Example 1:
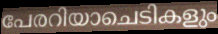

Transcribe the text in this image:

പേരറിയാചെടികളും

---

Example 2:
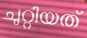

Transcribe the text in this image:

ചുറ്റിയത്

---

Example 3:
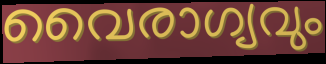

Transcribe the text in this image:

വൈരാഗ്യവും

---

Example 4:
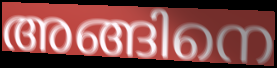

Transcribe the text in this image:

അങ്ങിനെ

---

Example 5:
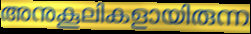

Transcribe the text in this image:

അനുകൂലികളായിരുന്ന